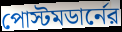
পোস্টমডার্নের